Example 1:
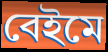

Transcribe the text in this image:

বেইমে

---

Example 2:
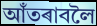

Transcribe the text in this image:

আঁতৰাবলৈ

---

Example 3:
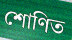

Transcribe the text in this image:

শোণিত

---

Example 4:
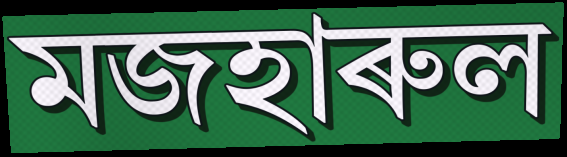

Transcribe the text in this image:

মজহাৰুল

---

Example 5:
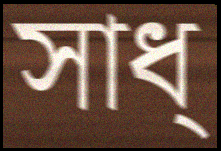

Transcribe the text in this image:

সাধ্